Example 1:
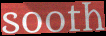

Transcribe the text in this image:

sooth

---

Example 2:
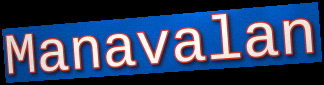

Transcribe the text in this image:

Manavalan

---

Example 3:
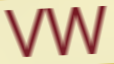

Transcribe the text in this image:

VW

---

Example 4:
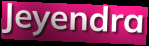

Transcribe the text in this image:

Jeyendra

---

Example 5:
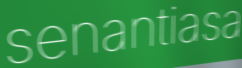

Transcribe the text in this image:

senantiasa